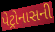
પેટ્રોનાસની